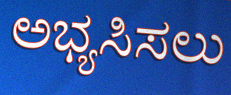
ಅಭ್ಯಸಿಸಲು